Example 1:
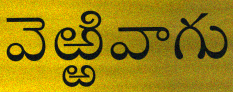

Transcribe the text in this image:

వెఱ్ఱివాగు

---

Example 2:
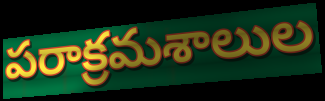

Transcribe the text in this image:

పరాక్రమశాలుల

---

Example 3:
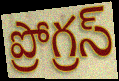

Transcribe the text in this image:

ప్రోగ్రస్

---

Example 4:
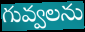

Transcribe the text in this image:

గువ్వలను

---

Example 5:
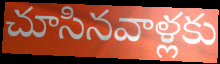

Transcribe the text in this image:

చూసినవాళ్లకు